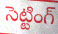
సెట్టింగ్